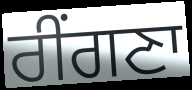
ਰੀਂਗਣਾ